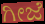
ಗೀಜೆ